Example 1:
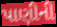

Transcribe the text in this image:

પાણીની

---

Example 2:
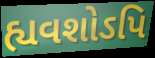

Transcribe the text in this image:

હ્યવશોઽપિ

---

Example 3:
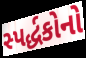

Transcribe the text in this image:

સ્પર્દ્ધકોનો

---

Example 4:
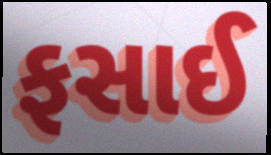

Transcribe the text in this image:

ફસાઈ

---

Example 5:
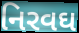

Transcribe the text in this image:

નિરવઘ